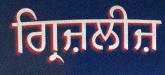
ਗ੍ਰਿਜ਼ਲੀਜ਼